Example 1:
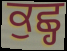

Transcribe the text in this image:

ਕੁਛ੍ਹ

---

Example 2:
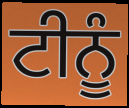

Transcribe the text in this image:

ਟੀਨੂੰ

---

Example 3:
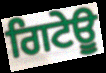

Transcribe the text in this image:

ਗਿਟੇਊ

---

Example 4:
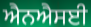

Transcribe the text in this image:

ਐਨਐਸਈ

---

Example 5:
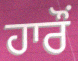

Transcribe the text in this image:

ਹਾਰੌਂ